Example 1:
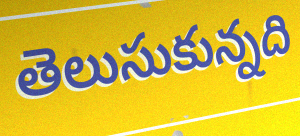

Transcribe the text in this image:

తెలుసుకున్నది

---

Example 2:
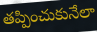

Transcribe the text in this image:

తప్పించుకునేలా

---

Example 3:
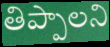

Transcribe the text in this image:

తిప్పాలని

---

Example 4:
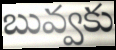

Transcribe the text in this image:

బువ్వకు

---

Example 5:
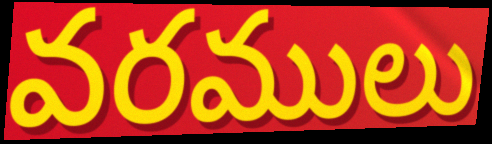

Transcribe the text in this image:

వరములు